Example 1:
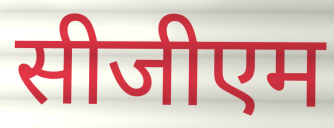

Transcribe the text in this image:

सीजीएम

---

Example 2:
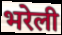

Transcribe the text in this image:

भरेली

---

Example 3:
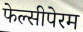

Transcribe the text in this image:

फेल्सीपेरम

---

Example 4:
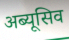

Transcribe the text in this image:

अब्यूसिव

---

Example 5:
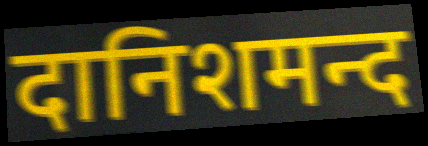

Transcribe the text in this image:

दानिशमन्द